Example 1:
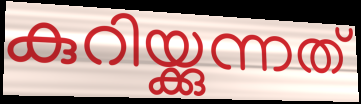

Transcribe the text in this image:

കുറിയ്ക്കുന്നത്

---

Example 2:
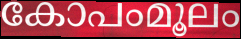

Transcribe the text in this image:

കോപംമൂലം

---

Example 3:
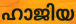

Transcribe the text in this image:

ഹാജിയ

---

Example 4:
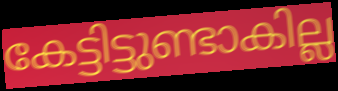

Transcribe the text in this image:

കേട്ടിട്ടുണ്ടാകില്ല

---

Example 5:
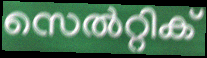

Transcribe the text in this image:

സെൽറ്റിക്